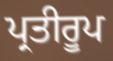
ਪ੍ਰਤੀਰੂਪ